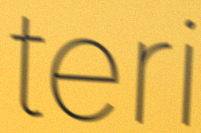
teri